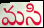
మసి